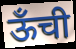
ऊँची